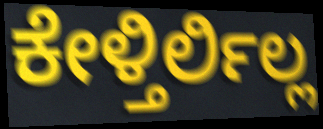
ಕೇಳ್ತಿರ್ಲಿಲ್ಲ